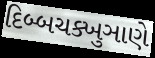
દિબ્બચક્ખુઞાણે